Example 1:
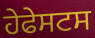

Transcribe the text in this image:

ਹੇਫੇਸਟਸ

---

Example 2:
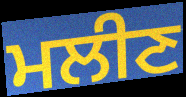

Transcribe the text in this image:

ਮਲੀਣ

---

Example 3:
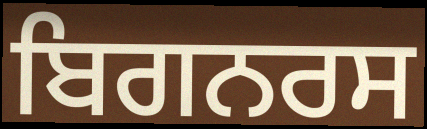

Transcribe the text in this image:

ਬਿਗਨਰਸ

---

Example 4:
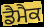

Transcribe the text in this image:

ਡੈਮੈਕ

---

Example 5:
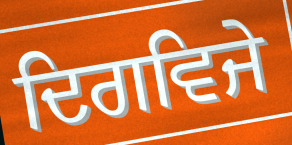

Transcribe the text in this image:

ਦਿਗਵਿਜੇ